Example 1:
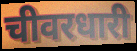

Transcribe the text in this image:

चीवरधारी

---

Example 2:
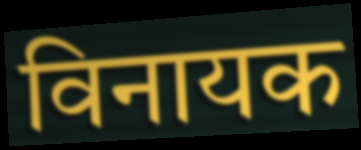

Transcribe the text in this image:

विनायक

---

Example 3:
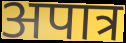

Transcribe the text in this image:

अपात्र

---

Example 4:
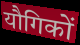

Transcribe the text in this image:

यौगिकों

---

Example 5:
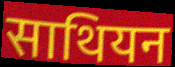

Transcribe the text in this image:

साथियन